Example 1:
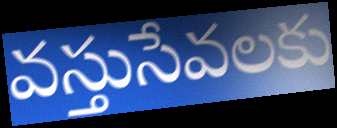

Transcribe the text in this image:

వస్తుసేవలకు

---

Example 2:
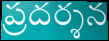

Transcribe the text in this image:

ప్రదర్శన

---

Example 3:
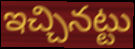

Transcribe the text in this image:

ఇచ్చినట్టు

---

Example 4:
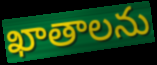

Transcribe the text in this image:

ఖాతాలను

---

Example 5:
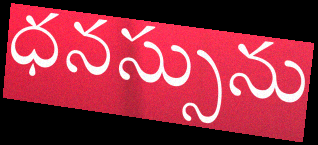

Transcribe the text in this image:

ధనస్సును